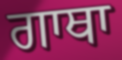
ਗਾਥਾ